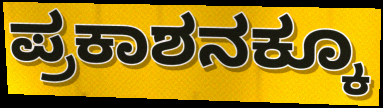
ಪ್ರಕಾಶನಕ್ಕೂ